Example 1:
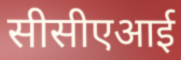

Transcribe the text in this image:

सीसीएआई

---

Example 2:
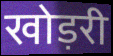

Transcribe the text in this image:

खोड़री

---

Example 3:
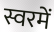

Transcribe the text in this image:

स्वरमें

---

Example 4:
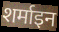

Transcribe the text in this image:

शर्माइन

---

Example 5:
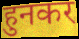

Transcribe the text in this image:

हुनकर